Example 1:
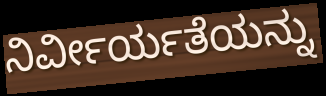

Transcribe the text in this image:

ನಿರ್ವೀರ್ಯತೆಯನ್ನು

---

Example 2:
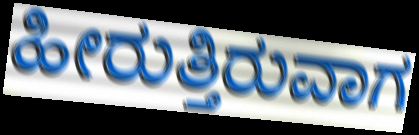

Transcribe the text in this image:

ಹೀರುತ್ತಿರುವಾಗ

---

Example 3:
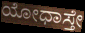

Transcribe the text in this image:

ಯೋಧಾಸ್ತೇ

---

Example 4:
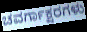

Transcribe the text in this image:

ಚವರ್ಗಾಕ್ಷರಗಳು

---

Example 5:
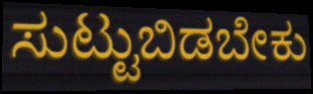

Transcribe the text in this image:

ಸುಟ್ಟುಬಿಡಬೇಕು